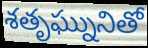
శతృఘ్నునితో